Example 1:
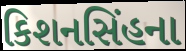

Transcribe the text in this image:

કિશનસિંહના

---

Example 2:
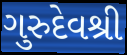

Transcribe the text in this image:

ગુરુદેવશ્રી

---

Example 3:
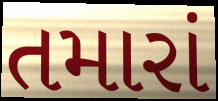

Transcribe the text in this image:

તમારાં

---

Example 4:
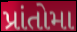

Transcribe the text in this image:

પ્રાંતોમા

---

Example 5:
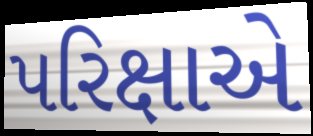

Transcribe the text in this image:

પરિક્ષાએ